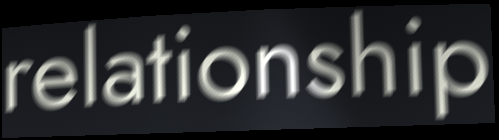
relationship